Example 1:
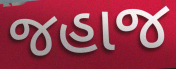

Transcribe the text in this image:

જહાજ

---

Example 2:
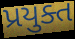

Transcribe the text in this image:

પ્રયુક્ત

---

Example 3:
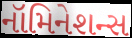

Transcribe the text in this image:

નૉમિનેશન્સ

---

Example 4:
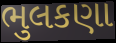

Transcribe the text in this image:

ભુલકણા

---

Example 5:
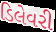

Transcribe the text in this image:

ડિલેવરી